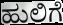
ಹುಲಿಗೆ